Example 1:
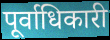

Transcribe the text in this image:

पूर्वाधिकारी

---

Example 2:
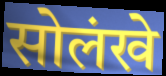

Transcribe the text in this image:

सोलंखे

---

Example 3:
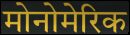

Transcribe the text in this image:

मोनोमेरिक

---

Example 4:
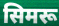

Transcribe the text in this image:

सिमरू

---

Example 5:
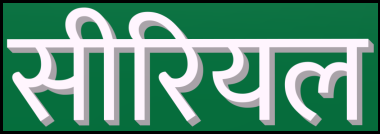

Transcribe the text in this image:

सीरियल